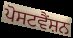
ਪੋਸਟਵੈਂਸ਼ਨ